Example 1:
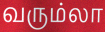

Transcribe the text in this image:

வரும்லா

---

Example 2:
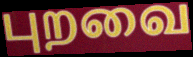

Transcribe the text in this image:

புறவை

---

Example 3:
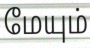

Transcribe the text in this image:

மேயும்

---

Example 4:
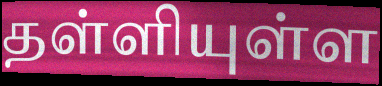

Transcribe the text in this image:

தள்ளியுள்ள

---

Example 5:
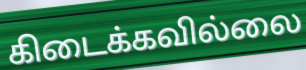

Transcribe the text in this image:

கிடைக்கவில்லை